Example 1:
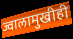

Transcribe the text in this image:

ज्वालामुखीही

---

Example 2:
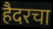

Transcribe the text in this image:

हैदरचा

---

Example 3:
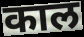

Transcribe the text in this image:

काल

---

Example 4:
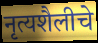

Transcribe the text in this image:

नृत्यशैलीचे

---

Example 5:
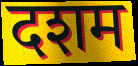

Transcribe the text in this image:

दशम